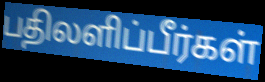
பதிலளிப்பீர்கள்